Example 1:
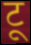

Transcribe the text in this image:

टू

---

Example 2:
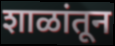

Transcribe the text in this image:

शाळांतून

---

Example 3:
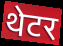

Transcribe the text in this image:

थेटर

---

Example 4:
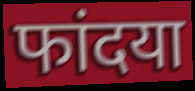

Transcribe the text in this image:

फांदया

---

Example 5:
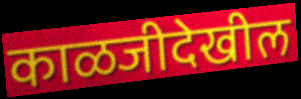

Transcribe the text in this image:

काळजीदेखील